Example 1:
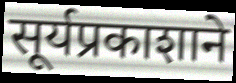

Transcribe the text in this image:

सूर्यप्रकाशाने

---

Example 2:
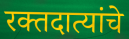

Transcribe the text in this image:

रक्तदात्यांचे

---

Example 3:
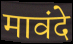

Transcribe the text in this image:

मावंदे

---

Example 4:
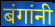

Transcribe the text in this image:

बंगांनी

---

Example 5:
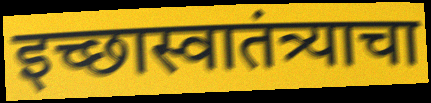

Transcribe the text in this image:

इच्छास्वातंत्र्याचा